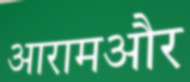
आरामऔर